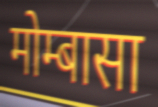
मोम्बासा